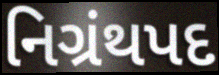
નિગ્રંથપદ